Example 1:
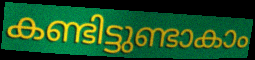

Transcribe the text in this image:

കണ്ടിട്ടുണ്ടാകാം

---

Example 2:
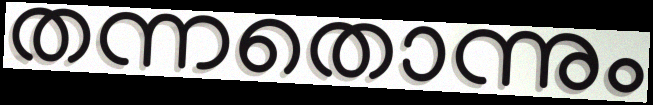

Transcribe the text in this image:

തന്നതൊന്നും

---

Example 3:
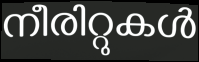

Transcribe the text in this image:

നീരിറ്റുകൾ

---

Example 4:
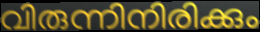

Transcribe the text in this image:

വിരുന്നിനിരിക്കും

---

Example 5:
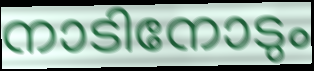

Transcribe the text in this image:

നാടിനോടും